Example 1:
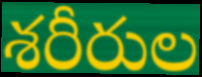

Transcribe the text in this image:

శరీరుల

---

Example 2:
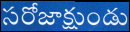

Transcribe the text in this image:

సరోజాక్షుండు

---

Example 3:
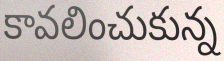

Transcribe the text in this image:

కావలించుకున్న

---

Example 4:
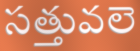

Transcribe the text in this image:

సత్తువలె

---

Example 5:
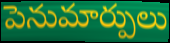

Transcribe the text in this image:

పెనుమార్పులు